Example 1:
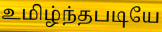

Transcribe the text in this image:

உமிழ்ந்தபடியே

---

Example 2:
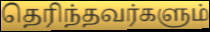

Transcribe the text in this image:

தெரிந்தவர்களும்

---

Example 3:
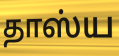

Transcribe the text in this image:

தாஸ்ய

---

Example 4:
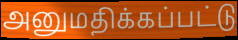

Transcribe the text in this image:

அனுமதிக்கப்பட்டு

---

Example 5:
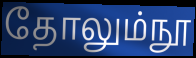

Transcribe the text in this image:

தோலும்நூ